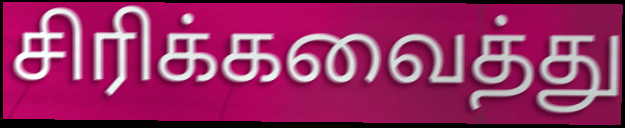
சிரிக்கவைத்து